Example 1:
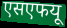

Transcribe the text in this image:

एसएफयू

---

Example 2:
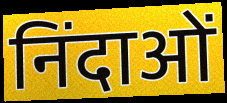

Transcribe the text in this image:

निंदाओं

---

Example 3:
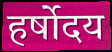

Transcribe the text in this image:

हर्षोदय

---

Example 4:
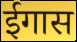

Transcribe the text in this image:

ईगास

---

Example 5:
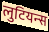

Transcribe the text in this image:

लुटियन्स